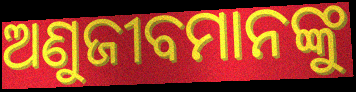
ଅଣୁଜୀବମାନଙ୍କୁ